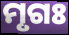
ମୃଗଃ